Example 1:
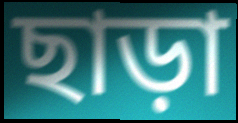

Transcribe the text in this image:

ছাড়া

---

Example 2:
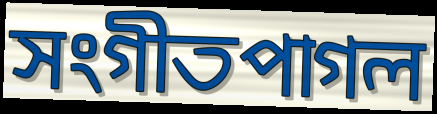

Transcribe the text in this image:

সংগীতপাগল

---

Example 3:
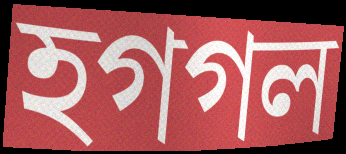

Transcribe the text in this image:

হগগল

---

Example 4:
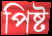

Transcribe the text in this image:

পিষ্ট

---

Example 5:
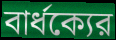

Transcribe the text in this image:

বার্ধক্যের